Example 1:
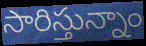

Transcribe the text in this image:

సారిస్తున్నాం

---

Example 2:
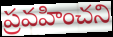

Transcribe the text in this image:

ప్రవహించని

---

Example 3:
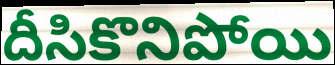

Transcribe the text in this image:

దీసికొనిపోయి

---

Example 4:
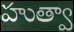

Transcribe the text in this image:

హుత్వా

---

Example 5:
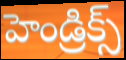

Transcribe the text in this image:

హెండ్రిక్స్